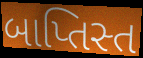
બાપ્તિસ્ત